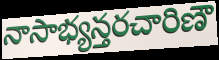
నాసాభ్యన్తరచారిణౌ